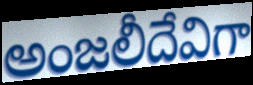
అంజలీదేవిగా